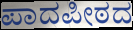
ಪಾದಪೀಠದ